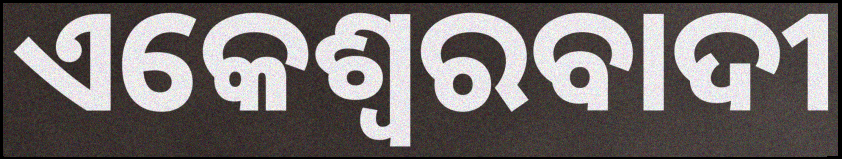
ଏକେଶ୍ଵରବାଦୀ